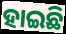
ହାଇଛି